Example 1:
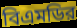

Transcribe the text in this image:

বিএমডির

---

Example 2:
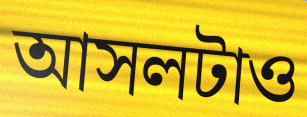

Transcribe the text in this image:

আসলটাও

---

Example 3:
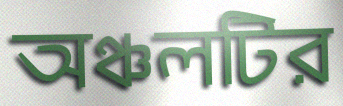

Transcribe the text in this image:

অঞ্চলটির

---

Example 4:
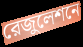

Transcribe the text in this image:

রেজুলেশনে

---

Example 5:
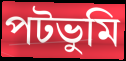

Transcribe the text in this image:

পটভুমি